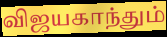
விஜயகாந்தும்